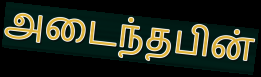
அடைந்தபின்